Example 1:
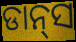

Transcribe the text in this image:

ଡାନ୍‍ସ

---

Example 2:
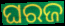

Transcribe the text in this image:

ଘରଜ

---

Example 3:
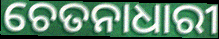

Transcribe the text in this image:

ଚେତନାଧାରୀ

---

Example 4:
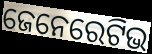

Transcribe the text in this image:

ଜେନେରେଟିଭ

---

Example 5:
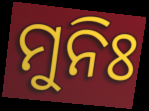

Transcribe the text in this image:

ମୁନିଃ